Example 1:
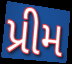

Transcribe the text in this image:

પ્રીમ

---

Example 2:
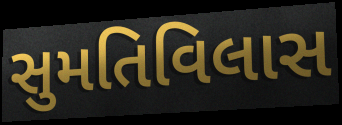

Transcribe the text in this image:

સુમતિવિલાસ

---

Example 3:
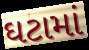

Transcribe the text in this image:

ઘટામાં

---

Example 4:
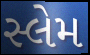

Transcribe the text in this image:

સ્લેમ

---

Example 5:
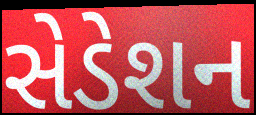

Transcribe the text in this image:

સેડેશન